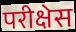
परीक्षेस